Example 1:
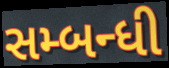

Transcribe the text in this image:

સમ્બન્ધી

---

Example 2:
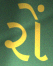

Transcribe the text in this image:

રોં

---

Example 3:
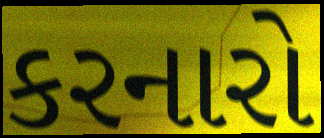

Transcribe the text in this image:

કરનારો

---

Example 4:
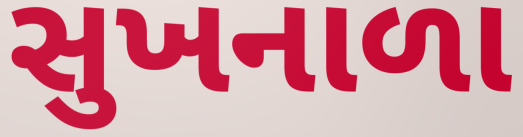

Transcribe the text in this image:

સુખનાળા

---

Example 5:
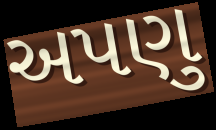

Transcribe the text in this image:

અપણુ